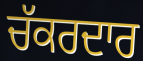
ਚੱਕਰਦਾਰ